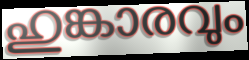
ഹുങ്കാരവും